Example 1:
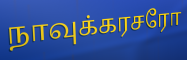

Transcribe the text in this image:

நாவுக்கரசரோ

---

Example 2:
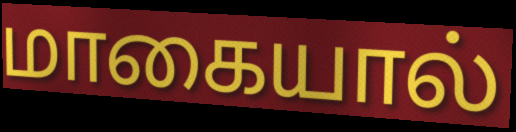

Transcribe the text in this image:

மாகையால்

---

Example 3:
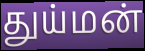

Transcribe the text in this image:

துய்மன்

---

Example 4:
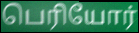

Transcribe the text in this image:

பெரியோர்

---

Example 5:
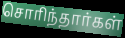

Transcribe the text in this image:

சொரிந்தார்கள்